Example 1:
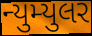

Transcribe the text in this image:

ન્યુમ્યુલર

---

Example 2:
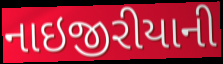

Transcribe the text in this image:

નાઇજીરીયાની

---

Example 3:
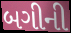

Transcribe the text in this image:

બગીની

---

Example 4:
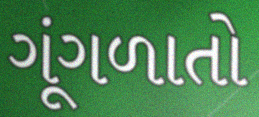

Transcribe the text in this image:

ગૂંગળાતો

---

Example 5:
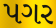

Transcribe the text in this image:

પગર